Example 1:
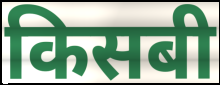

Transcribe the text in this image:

किसबी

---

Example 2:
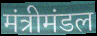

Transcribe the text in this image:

मंत्रीमंडल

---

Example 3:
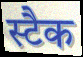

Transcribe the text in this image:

स्‍टैक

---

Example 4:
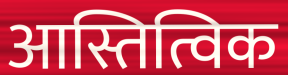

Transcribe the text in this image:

आस्तित्विक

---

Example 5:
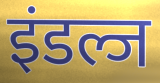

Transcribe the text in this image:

इंडल्ज